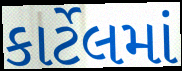
કાર્ટેલમાં